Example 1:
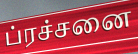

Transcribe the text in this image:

ப்ரச்சனை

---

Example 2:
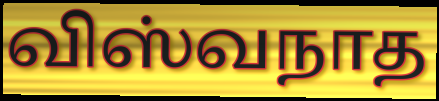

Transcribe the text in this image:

விஸ்வநாத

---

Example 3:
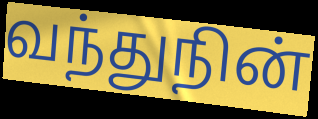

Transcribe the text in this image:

வந்துநின்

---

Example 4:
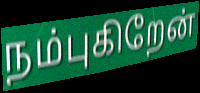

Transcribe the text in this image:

நம்புகிறேன்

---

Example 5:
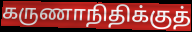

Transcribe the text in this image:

கருணாநிதிக்குத்